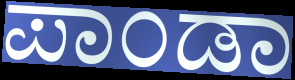
ಪಾಂಡಾ